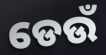
ଡେଉଁ